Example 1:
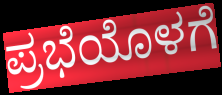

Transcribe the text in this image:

ಪ್ರಭೆಯೊಳಗೆ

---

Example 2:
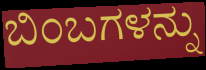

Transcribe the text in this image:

ಬಿಂಬಗಳನ್ನು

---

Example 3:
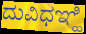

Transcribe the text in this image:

ದುವಿಧಞ್ಹಿ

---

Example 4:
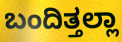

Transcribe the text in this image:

ಬಂದಿತ್ತಲ್ಲಾ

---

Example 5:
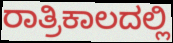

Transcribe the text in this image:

ರಾತ್ರಿಕಾಲದಲ್ಲಿ